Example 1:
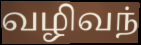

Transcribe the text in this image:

வழிவந்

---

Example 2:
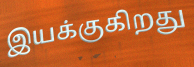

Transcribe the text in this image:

இயக்குகிறது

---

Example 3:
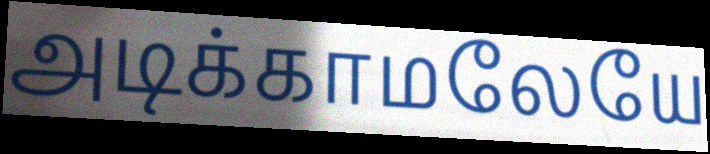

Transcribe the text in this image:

அடிக்காமலேயே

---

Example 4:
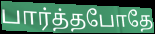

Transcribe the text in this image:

பார்த்தபோதே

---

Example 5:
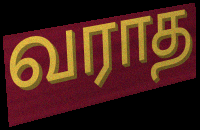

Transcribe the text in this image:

வராத